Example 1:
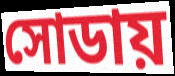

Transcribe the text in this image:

সোডায়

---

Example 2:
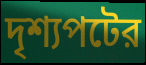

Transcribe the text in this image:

দৃশ্যপটের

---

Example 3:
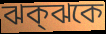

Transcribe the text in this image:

ঝক্‌ঝকে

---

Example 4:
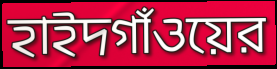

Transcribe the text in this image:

হাইদগাঁওয়ের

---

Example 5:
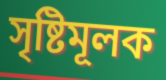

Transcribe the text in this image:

সৃষ্টিমূলক